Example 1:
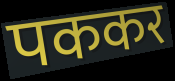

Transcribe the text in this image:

पककर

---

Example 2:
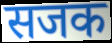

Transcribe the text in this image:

सजक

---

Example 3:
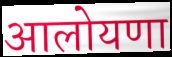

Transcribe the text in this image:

आलोयणा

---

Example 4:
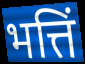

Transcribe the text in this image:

भत्तिं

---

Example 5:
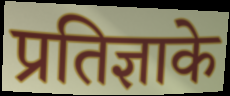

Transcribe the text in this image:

प्रतिज्ञाके